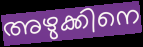
അഴുക്കിനെ